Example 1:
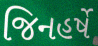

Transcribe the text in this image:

જિનહર્ષે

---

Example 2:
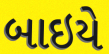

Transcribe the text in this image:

બાઇયે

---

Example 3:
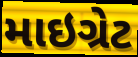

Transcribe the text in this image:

માઇગ્રેટ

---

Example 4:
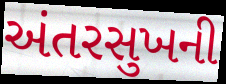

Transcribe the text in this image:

અંતરસુખની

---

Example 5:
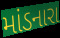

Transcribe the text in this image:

માંડનારા